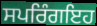
ਸਪਰਿੰਗਇਹ